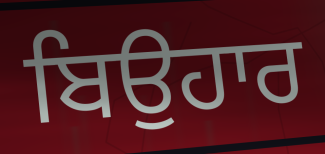
ਬਿਉਹਾਰ